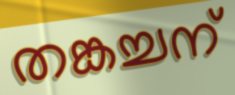
തങ്കച്ചന്